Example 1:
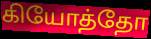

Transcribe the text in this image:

கியோத்தோ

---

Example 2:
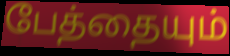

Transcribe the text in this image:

பேத்தையும்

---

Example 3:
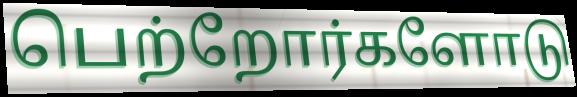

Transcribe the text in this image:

பெற்றோர்களோடு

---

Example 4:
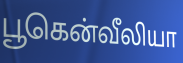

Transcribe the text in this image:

பூகென்வீலியா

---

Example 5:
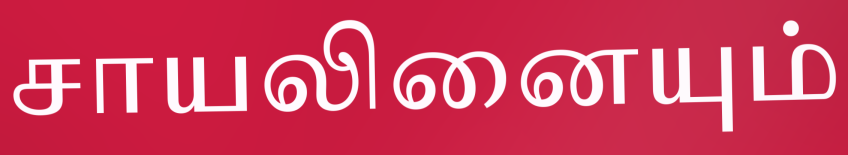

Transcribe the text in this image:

சாயலினையும்